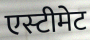
एस्‍टीमेट